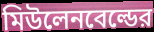
মিউলেনবেল্ডের